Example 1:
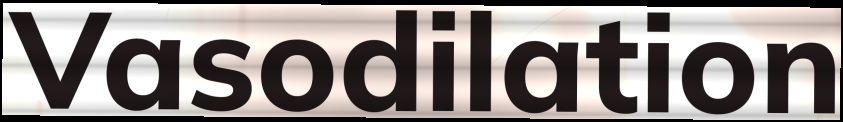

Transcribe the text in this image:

Vasodilation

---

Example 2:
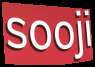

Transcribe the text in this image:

sooji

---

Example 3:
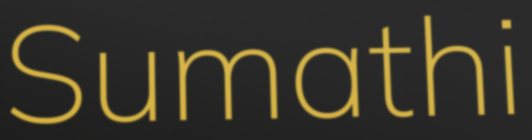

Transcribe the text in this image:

Sumathi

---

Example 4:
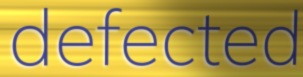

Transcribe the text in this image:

defected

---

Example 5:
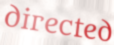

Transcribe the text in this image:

directed